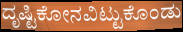
ದೃಷ್ಟಿಕೋನವಿಟ್ಟುಕೊಂಡು